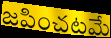
జపించటమే